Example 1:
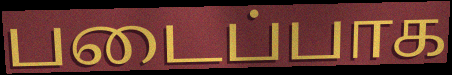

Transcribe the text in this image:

படைப்பாக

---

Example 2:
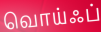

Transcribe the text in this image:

வொய்ஃப்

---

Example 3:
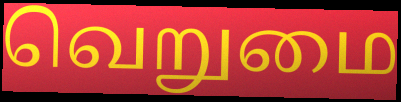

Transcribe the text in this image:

வெறுமை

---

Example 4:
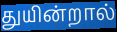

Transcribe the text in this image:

துயின்றால்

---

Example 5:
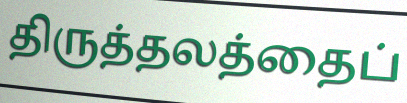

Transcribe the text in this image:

திருத்தலத்தைப்